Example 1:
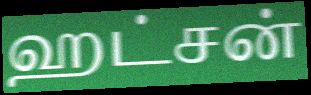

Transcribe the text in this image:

ஹட்சன்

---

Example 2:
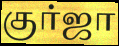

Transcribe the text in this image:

குர்ஜா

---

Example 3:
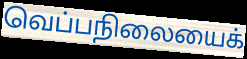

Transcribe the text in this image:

வெப்பநிலையைக்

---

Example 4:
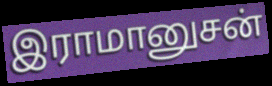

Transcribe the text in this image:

இராமானுசன்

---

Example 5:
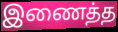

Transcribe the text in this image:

இணைத்த